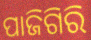
ପାଜିଗିରି